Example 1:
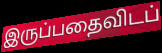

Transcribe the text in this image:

இருப்பதைவிடப்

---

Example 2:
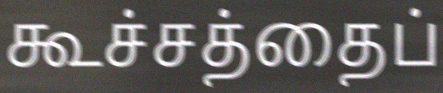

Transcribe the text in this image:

கூச்சத்தைப்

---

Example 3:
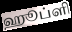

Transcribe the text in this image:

ஹூப்ளி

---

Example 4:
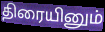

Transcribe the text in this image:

திரையினும்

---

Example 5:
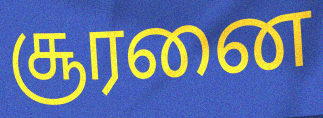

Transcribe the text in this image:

சூரனை